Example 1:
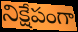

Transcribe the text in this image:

నిక్షేపంగా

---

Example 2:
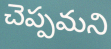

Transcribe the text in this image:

చెప్పమని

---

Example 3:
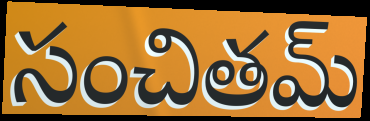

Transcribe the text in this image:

సంచితమ్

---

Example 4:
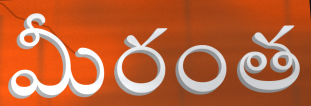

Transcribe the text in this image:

మీరంత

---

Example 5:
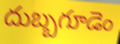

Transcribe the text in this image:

దుబ్బగూడెం